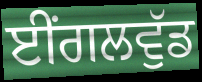
ਈਂਗਲਵੁੱਡ